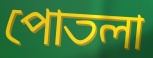
পোতলা